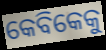
କେବିକେକୁ